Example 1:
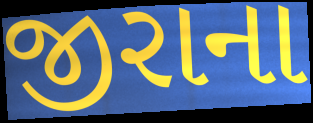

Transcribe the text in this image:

જીરાના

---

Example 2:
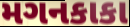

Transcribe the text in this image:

મગનકાકા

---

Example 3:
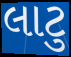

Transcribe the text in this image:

લાટુ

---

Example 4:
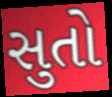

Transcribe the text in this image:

સુતો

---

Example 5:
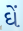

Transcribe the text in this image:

ઘેં